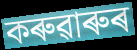
কৰুৱাৰুৰ